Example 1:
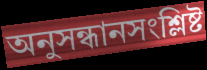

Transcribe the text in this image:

অনুসন্ধানসংশ্লিষ্ট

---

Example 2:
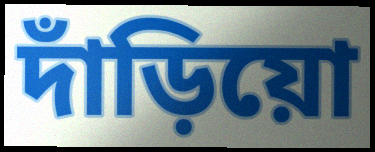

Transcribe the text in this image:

দাঁড়িয়ো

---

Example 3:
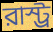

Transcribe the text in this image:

রাস্ট্র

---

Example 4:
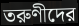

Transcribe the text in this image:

তরুণীদের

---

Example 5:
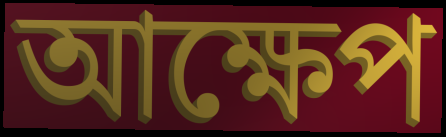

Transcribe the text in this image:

আক্ষেপ